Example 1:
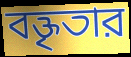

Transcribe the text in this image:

বক্তৃতার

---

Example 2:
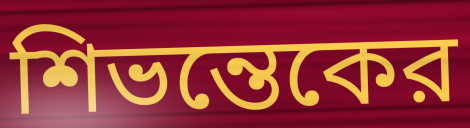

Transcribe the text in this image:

শিভন্তেকের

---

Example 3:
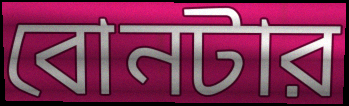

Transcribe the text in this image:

বোনটার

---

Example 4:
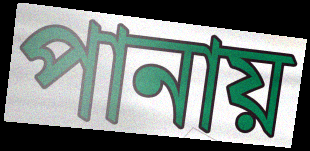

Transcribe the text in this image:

পানায়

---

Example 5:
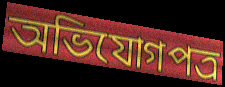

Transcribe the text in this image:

অভিযোগপত্র